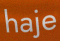
haje